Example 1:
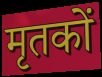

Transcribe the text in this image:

मृतकों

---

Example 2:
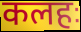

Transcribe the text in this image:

कलहः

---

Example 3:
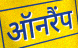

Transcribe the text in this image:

ऑनरैंप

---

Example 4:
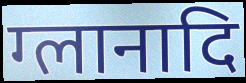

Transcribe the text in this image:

ग्लानादि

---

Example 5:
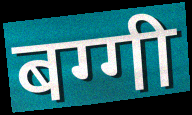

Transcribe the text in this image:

बग्गी